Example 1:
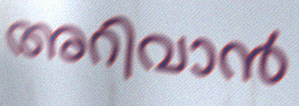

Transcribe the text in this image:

അറിവാൻ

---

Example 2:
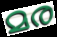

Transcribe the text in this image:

മര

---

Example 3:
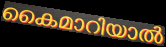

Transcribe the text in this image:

കൈമാറിയാൽ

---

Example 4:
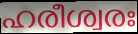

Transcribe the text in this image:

ഹരീശ്വരഃ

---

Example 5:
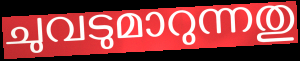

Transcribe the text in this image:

ചുവടുമാറുന്നതു